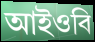
আইওবি